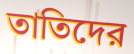
তাতিদের